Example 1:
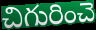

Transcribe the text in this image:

చిగురించె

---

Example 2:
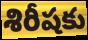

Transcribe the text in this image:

శిరీషకు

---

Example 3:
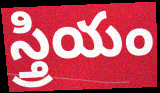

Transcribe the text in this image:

స్త్రియం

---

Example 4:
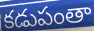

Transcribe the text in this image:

కడుపంతా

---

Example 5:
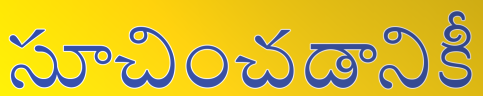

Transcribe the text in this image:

సూచించడానికీ